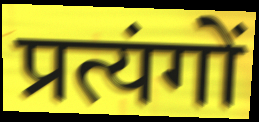
प्रत्यंगों